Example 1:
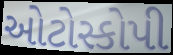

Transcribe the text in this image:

ઓટોસ્કોપી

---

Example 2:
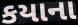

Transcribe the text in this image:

કયાના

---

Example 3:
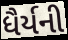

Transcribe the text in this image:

ધૈર્યની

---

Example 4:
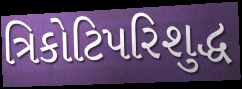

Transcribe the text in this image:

ત્રિકોટિપરિશુદ્ધ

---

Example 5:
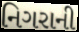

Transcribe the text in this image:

નિગરાની